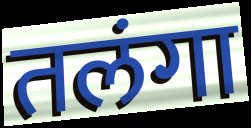
तलंगा